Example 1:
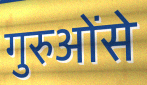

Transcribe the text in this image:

गुरुओंसे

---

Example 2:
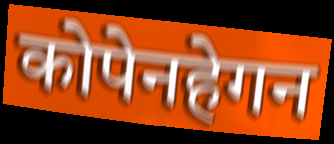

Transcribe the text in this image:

कोपेनहेगन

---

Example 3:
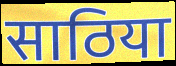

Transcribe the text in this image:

साठिया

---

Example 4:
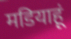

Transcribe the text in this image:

मडियाहूं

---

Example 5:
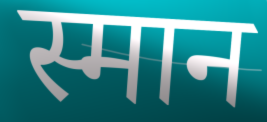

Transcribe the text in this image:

स्मान